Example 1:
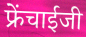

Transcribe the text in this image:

फ्रेंचाईजी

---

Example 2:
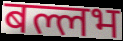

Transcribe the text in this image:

बल्लभ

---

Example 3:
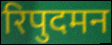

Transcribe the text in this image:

रिपुदमन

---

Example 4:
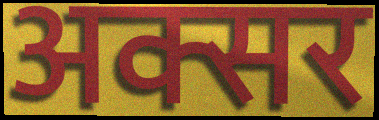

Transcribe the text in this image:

अक्सर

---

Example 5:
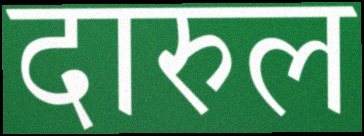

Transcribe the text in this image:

दारुल